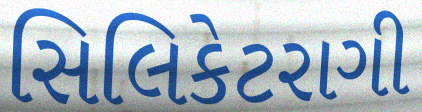
સિલિકેટરાગી